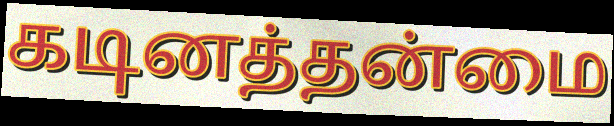
கடினத்தன்மை